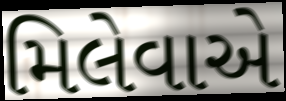
મિલેવાએ